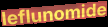
leflunomide